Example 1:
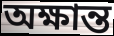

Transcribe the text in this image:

অক্ষান্ত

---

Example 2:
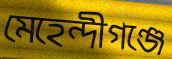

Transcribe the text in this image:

মেহেন্দীগঞ্জে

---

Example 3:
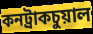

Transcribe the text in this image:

কনট্রাকচুয়াল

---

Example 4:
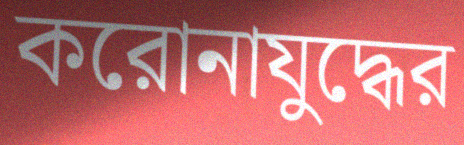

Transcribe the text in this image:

করোনাযুদ্ধের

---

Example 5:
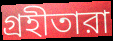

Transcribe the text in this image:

গ্রহীতারা